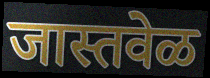
जास्तवेळ